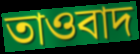
তাওবাদ